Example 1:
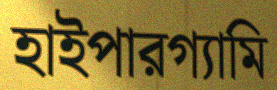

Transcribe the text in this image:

হাইপারগ্যামি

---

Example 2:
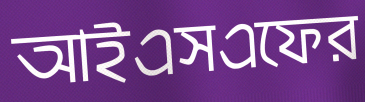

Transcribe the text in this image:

আইএসএফের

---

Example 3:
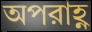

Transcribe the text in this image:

অপরাহ্ণ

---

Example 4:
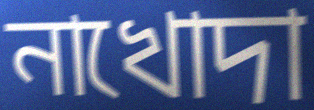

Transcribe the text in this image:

নাখোদা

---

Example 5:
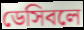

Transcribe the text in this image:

ডেসিবলে